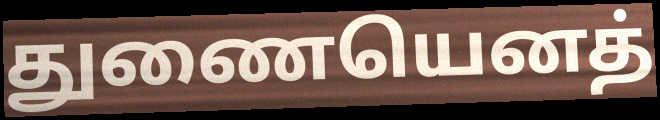
துணையெனத்